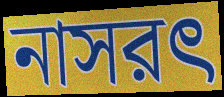
নাসরৎ